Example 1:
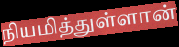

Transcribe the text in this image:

நியமித்துள்ளான்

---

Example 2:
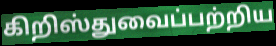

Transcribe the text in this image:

கிறிஸ்துவைப்பற்றிய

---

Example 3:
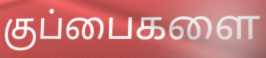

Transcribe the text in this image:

குப்பைகளை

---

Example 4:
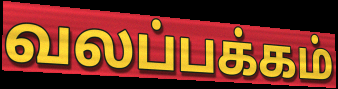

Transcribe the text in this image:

வலப்பக்கம்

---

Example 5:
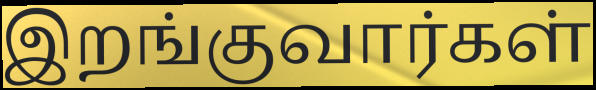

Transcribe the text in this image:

இறங்குவார்கள்